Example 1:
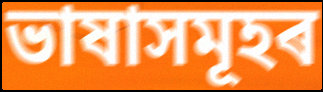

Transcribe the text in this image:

ভাষাসমূহৰ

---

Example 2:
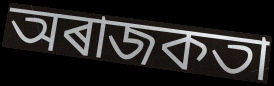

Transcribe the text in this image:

অৰাজকতা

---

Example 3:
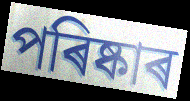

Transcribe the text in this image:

পৰিষ্কাৰ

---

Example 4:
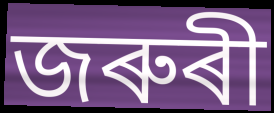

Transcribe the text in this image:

জৰুৰী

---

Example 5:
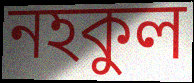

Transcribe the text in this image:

নহকুল